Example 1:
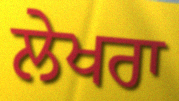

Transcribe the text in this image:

ਲੇਖਰਾ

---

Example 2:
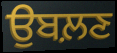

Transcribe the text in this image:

ਉਬਲ਼ਣ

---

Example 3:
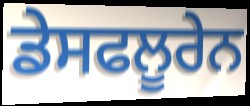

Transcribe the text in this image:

ਡੇਸਫਲੂਰੇਨ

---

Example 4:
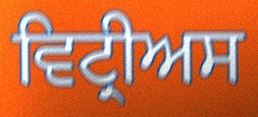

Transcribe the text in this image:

ਵਿਟ੍ਰੀਅਸ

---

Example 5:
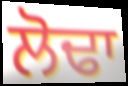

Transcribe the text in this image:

ਲੋਢਾ